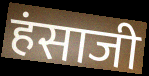
हंसाजी